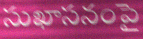
సుఖాసనంపై